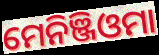
ମେନିଞ୍ଜିଓମା